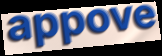
appove